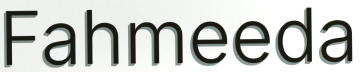
Fahmeeda